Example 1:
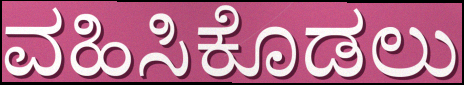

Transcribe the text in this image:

ವಹಿಸಿಕೊಡಲು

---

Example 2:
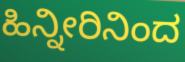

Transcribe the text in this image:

ಹಿನ್ನೀರಿನಿಂದ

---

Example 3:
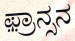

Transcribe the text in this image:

ಫ಼್ರಾನ್ಸನ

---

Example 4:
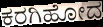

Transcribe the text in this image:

ಕರಗಿಹೋದ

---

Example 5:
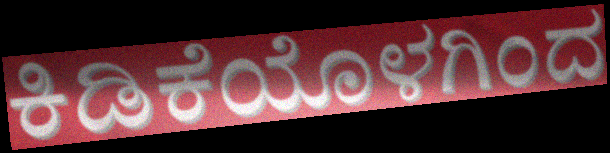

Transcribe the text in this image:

ಕಿಡಿಕೆಯೊಳಗಿಂದ